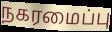
நகரமைப்பு